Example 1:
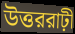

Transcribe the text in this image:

উত্তররাঢ়ী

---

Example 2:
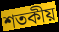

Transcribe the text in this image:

শতকীয়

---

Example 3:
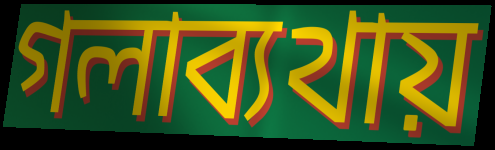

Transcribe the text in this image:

গলাব্যথায়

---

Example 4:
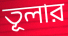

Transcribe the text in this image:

তূলার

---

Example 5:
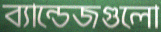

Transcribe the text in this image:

ব্যান্ডেজগুলো